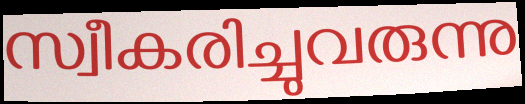
സ്വീകരിച്ചുവരുന്നു